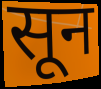
सून